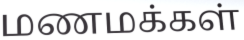
மணமக்கள்